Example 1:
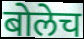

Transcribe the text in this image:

बोलेच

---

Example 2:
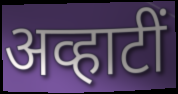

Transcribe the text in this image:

अव्हाटीं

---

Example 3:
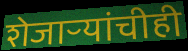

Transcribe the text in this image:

शेजाऱ्यांचीही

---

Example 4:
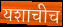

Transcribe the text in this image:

यशाचीच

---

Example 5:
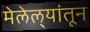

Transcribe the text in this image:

मेलेल्यांतून